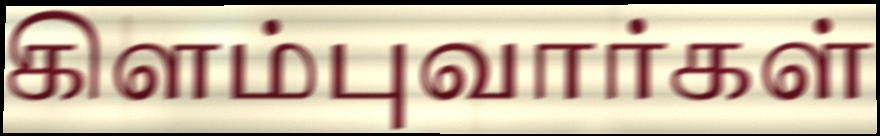
கிளம்புவார்கள்